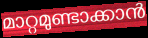
മാറ്റമുണ്ടാക്കാൻ